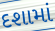
દશામાં